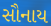
સૌનાય